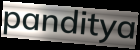
panditya